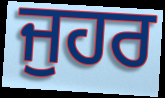
ਜੁਹਰ